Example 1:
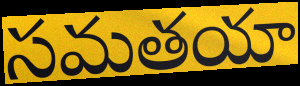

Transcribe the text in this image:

సమతయా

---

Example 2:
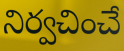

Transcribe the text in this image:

నిర్వచించే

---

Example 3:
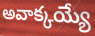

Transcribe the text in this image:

అవాక్కయ్యే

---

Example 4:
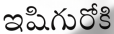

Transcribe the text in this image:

ఇషిగురోకి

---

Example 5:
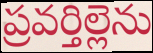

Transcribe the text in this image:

ప్రవర్తిల్లెను